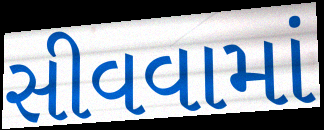
સીવવામાં